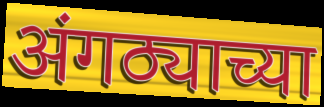
अंगठ्याच्या